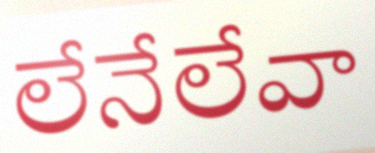
లేనేలేవా